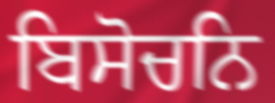
ਬਿਸੋਚਨਿ